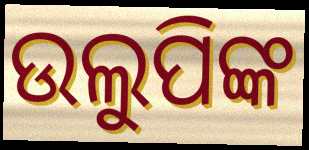
ଉଲୁପିଙ୍କ